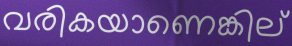
വരികയാണെങ്കില്